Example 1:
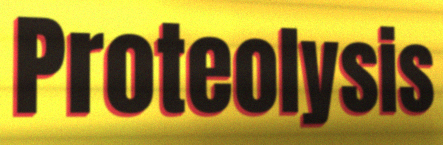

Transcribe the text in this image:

Proteolysis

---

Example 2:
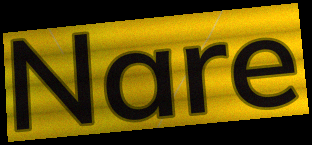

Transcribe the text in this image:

Nare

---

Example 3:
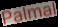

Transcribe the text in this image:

Palmal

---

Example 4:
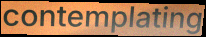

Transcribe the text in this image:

contemplating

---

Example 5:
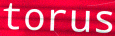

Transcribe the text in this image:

torus